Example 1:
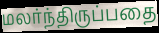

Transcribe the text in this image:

மலர்ந்திருப்பதை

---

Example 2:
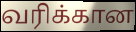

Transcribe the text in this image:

வரிக்கான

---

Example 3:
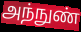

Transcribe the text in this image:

அந்நுண்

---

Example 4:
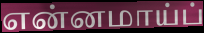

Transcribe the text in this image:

என்னமாய்ப்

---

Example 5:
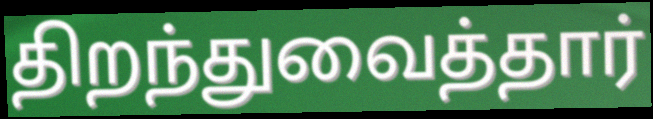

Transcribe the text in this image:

திறந்துவைத்தார்